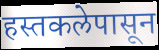
हस्तकलेपासून